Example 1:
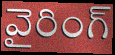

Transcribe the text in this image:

వైరింగ్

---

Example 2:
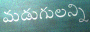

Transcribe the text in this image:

మడుగులన్ని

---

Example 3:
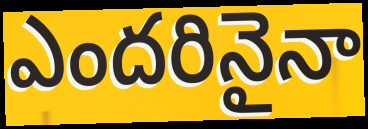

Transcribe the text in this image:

ఎందరినైనా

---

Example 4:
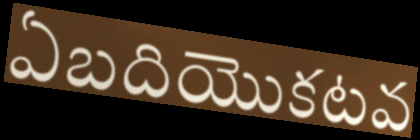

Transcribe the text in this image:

ఏబదియొకటవ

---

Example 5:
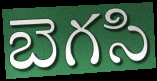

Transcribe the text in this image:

బెగసి